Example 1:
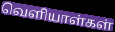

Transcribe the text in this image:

வெளியாள்கள்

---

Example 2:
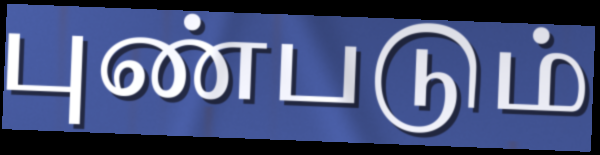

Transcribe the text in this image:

புண்படும்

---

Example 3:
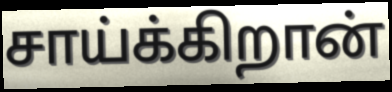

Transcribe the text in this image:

சாய்க்கிறான்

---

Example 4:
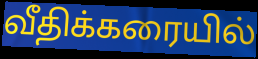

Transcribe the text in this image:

வீதிக்கரையில்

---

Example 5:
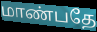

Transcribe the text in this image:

மாண்பதே